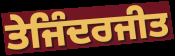
ਤੇਜਿੰਦਰਜੀਤ